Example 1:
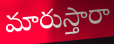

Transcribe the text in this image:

మారుస్తారా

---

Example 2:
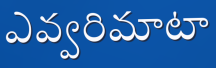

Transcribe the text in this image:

ఎవ్వరిమాటా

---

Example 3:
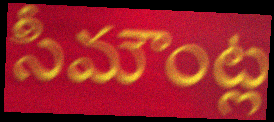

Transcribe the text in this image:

సీమౌంట్ల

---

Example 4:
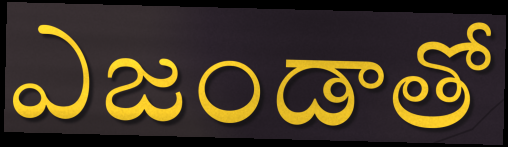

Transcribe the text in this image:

ఎజండాతో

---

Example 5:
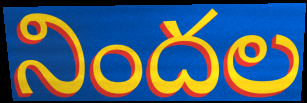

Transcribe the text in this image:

నిందల